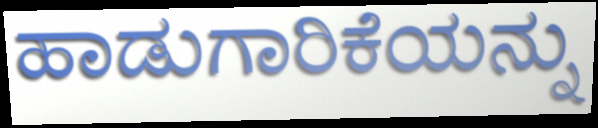
ಹಾಡುಗಾರಿಕೆಯನ್ನು